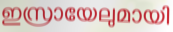
ഇസ്രായേലുമായി